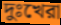
দুঃখেরা